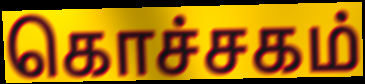
கொச்சகம்